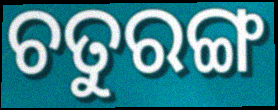
ଚତୁରଙ୍ଗ